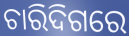
ଚାରିଦିଗରେ